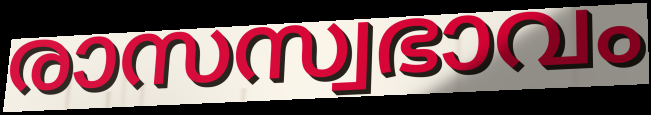
രാസസ്വഭാവം